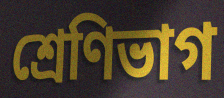
শ্রেণিভাগ